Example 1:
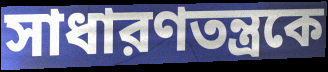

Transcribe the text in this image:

সাধারণতন্ত্রকে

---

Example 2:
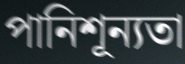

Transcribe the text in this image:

পানিশূন্যতা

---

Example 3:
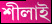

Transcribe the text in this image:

শীলাই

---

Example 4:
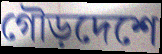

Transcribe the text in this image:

গৌড়দেশে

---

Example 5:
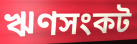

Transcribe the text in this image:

ঋণসংকট